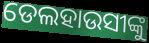
ଡେଲହାଉସୀଙ୍କୁ